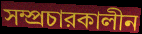
সম্প্রচারকালীন